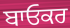
ਬਾਓਕਰ